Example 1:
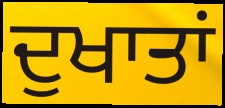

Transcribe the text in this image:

ਦੁਖਾਤਾਂ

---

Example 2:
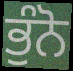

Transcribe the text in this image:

ਭੁੰਨੋ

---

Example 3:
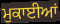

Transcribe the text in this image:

ਮੁਕਾਈਆਂ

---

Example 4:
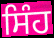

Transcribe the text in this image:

ਸਿੰਹ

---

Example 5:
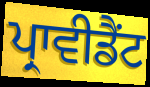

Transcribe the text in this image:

ਪ੍ਰਾਵੀਡੈਂਟ